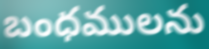
బంధములను